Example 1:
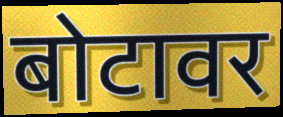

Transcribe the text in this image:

बोटावर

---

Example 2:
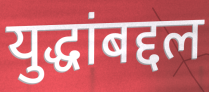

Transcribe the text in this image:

युद्धांबद्दल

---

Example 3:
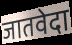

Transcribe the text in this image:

जातवेदा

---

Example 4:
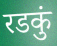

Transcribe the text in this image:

रडकुं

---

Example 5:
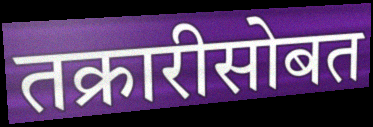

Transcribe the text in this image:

तक्रारीसोबत